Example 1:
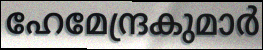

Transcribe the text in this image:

ഹേമേന്ദ്രകുമാർ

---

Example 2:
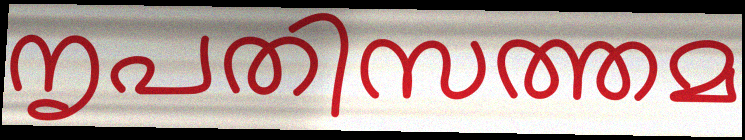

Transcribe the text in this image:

നൃപതിസത്തമ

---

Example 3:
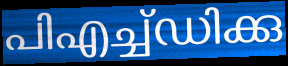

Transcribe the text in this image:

പിഎച്ച്ഡിക്കു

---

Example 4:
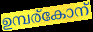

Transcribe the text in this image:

ഉമ്പര്കോന്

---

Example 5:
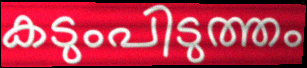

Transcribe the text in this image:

കടുംപിടുത്തം